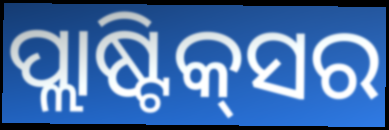
ପ୍ଲାଷ୍ଟିକ୍‌ସର